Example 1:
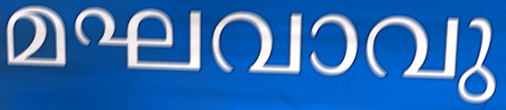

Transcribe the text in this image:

മഘവാവു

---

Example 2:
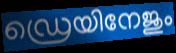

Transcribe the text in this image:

ഡ്രെയിനേജും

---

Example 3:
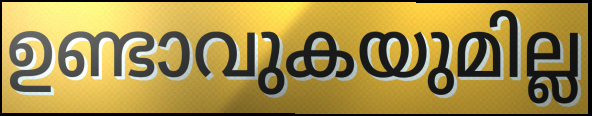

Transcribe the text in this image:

ഉണ്ടാവുകയുമില്ല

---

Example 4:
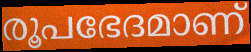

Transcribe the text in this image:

രൂപഭേദമാണ്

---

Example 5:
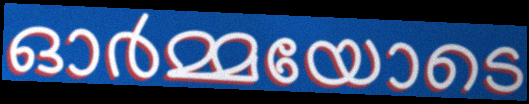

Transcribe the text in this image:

ഓർമ്മയോടെ